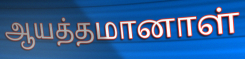
ஆயத்தமானாள்